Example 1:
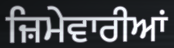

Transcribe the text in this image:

ਜ਼ਿਮੇਵਾਰੀਆਂ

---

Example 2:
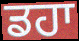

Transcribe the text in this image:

ਡਹਾ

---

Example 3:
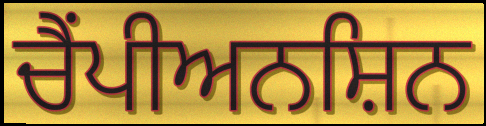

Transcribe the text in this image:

ਚੈਂਪੀਅਨਸ਼ਿਨ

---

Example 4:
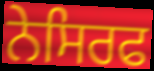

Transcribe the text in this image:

ਨੇਸਿਰਫ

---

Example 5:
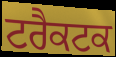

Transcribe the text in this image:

ਟਰੈਕਟਕ